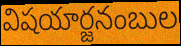
విషయార్జనంబుల